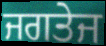
ਜਗਤੇਜ